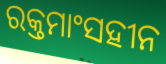
ରକ୍ତମାଂସହୀନ